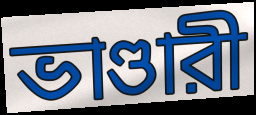
ভাণ্ডারী